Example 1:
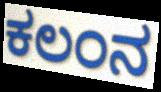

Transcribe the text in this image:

ಕಲಂನ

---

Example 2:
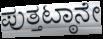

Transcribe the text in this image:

ಪುತ್ತಟ್ಠಾನೇ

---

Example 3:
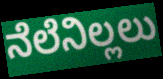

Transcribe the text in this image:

ನೆಲೆನಿಲ್ಲಲು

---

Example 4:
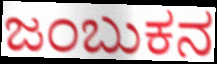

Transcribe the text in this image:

ಜಂಬುಕನ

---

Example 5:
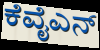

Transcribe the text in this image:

ಕೆವೈಎನ್